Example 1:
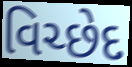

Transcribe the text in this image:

વિચ્છેદ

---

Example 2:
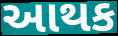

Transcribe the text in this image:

આથક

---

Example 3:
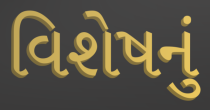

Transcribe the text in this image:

વિશેષનું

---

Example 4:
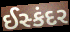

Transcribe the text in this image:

ઈસ્કંદર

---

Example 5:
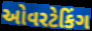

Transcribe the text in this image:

ઓવરટેકિંગ